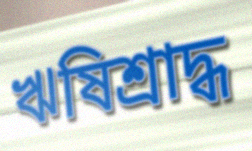
ঋষিশ্রাদ্ধ